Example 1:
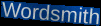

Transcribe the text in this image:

Wordsmith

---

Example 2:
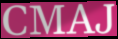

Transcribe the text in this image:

CMAJ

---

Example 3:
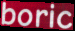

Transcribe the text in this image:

boric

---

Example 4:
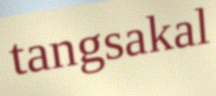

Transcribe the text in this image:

tangsakal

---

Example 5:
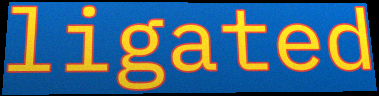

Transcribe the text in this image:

ligated